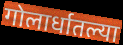
गोलार्धातल्या